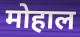
मोहाल